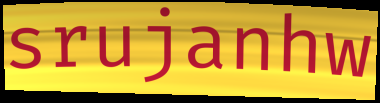
srujanhw